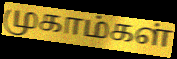
முகாம்கள்